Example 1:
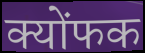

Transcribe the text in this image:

क्योंफक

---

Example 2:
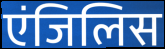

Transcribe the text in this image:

एंजिलिस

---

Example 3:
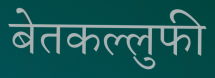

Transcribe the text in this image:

बेतकल्लुफी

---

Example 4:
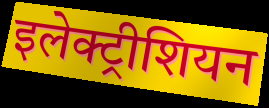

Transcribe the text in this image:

इलेक्ट्रीशियन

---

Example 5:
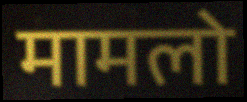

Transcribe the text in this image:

मामलो